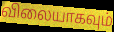
விலையாகவும்